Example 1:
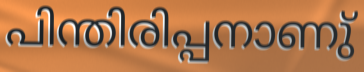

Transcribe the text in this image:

പിന്തിരിപ്പനാണു്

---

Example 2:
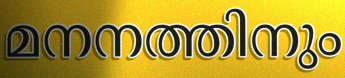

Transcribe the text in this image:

മനനത്തിനും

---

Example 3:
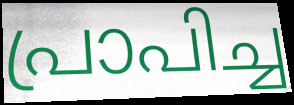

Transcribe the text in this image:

പ്രാപിച്ച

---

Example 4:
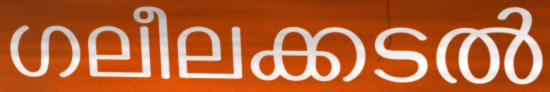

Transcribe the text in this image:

ഗലീലക്കടൽ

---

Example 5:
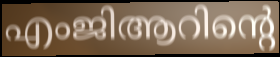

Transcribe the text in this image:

എംജിആറിന്റെ